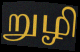
றுழி